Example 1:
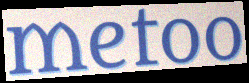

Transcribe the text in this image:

metoo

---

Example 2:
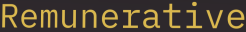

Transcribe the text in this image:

Remunerative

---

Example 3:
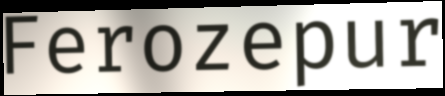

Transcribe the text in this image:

Ferozepur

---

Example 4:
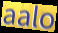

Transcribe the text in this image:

aalo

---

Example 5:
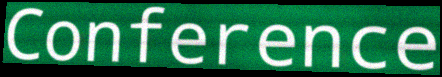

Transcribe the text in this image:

Conference